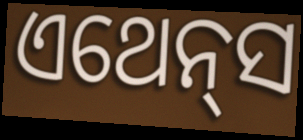
ଏଥେନ୍‌ସ